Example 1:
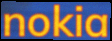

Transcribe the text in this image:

nokia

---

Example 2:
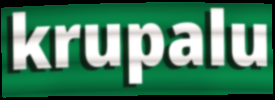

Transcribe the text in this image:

krupalu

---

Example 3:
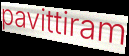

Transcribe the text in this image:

pavittiram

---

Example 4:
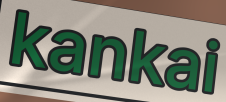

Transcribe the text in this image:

kankai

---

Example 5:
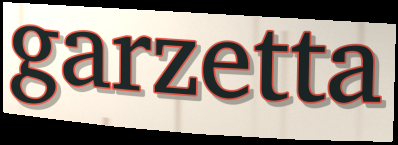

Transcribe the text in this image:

garzetta